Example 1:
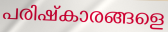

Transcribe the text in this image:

പരിഷ്‌കാരങ്ങളെ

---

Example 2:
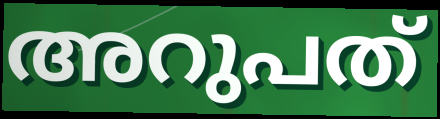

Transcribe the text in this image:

അറുപത്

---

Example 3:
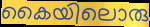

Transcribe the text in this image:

കൈയിലൊരു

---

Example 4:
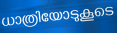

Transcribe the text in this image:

ധാത്രിയോടുകൂടെ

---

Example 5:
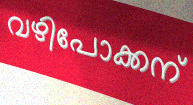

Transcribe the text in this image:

വഴിപോക്കന്